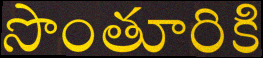
సొంతూరికి